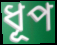
ধূপ